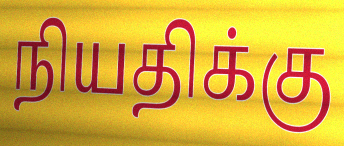
நியதிக்கு